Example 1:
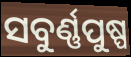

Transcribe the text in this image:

ସବୁର୍ଣ୍ଣପୁଷ୍ପ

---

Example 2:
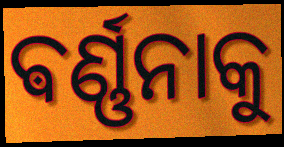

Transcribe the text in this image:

ଵର୍ଣ୍ଣନାକୁ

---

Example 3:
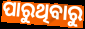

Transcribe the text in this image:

ପାରୁଥିବାରୁ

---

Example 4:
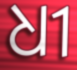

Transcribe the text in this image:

ଧୀ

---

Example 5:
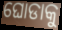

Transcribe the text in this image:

ଘୋଡାକୁ